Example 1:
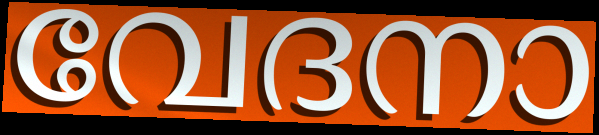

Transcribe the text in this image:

വേദനാ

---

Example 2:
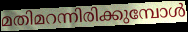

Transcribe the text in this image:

മതിമറന്നിരിക്കുമ്പോൾ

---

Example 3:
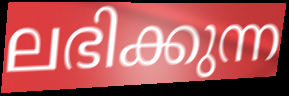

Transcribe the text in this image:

ലഭിക്കുന്ന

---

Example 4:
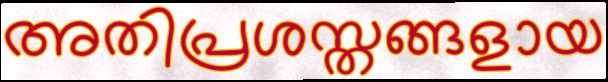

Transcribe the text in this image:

അതിപ്രശസ്തങ്ങളായ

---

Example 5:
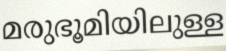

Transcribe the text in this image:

മരുഭൂമിയിലുള്ള